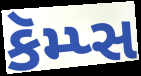
કૅમ્પ્સ